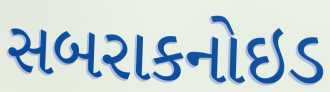
સબરાકનોઇડ